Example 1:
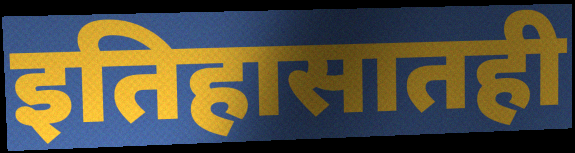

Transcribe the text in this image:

इतिहासातही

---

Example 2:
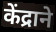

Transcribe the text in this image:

केंद्राने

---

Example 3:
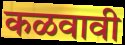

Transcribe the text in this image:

कळवावी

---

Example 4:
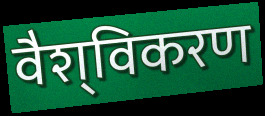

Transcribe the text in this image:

वैश्विकरण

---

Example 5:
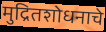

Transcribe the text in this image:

मुद्रितशोधनाचे